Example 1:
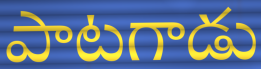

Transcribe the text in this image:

పాటగాడు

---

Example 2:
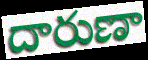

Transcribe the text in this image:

దారుణా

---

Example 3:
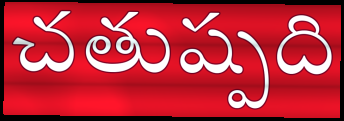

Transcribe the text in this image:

చతుష్పది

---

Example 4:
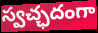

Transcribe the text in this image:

స్వచ్ఛదంగా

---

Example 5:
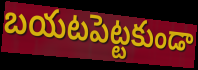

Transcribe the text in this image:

బయటపెట్టకుండా